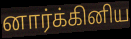
னார்க்கினிய